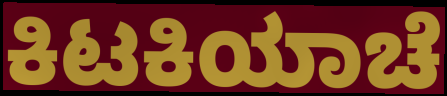
ಕಿಟಕಿಯಾಚೆ